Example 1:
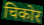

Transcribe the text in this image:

चिकोर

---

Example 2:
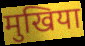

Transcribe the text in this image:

मुखिया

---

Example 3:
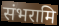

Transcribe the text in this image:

संभरामि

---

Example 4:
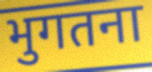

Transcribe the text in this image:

भुगतना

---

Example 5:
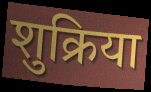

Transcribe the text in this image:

शुक्रिया